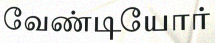
வேண்டியோர்